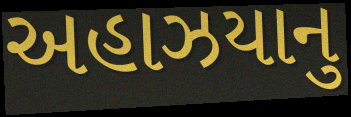
અહાઝયાનુ